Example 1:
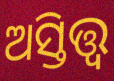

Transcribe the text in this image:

ଅସ୍ତିତ୍ତ୍ବ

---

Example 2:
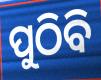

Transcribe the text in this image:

ପୁଠିବି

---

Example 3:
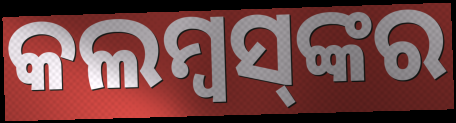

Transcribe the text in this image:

କଲମ୍ୱସ୍‌ଙ୍କର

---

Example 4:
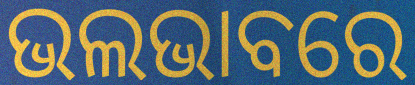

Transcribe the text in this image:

ଭଲଭାବରେ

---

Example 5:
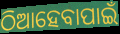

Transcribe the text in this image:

ଠିଆହେବାପାଇଁ